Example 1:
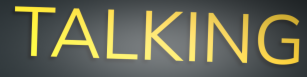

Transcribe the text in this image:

TALKING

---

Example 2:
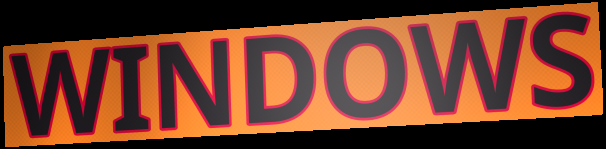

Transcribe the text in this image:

WINDOWS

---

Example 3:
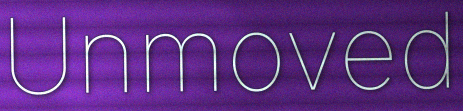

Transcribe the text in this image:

Unmoved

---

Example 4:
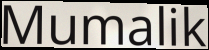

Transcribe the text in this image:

Mumalik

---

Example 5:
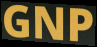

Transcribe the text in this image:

GNP